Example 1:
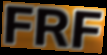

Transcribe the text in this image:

FRF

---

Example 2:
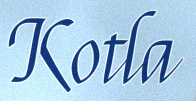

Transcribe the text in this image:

Kotla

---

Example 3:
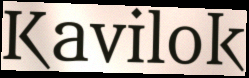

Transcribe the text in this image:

Kavilok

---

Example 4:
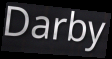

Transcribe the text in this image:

Darby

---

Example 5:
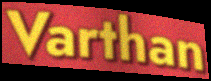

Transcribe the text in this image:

Varthan